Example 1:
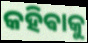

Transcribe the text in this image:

କହିଵାକୁ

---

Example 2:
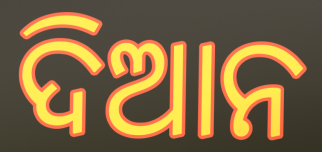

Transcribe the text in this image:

ଦିଆନ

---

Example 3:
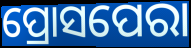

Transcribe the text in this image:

ପ୍ରୋସପେରା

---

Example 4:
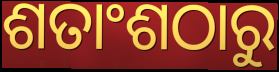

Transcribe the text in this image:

ଶତାଂଶଠାରୁ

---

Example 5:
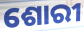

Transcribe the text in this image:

ଶୋରୀ